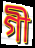
গী